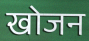
खोजन